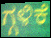
ಗ್ಗಳಿಕೆ